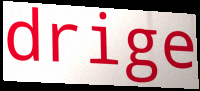
drige